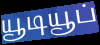
யூடியூப்